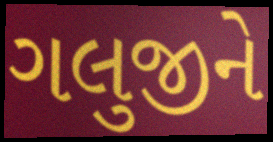
ગલુજીને